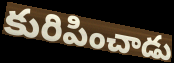
కురిపించాడు